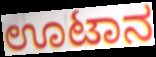
ಊಟಾನ